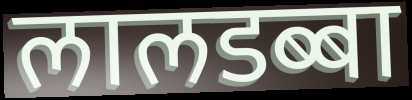
लालडब्बा